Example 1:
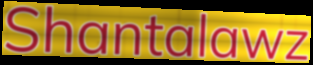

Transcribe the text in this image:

Shantalawz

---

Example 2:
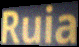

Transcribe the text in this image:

Ruia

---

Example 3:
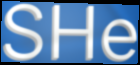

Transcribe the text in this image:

SHe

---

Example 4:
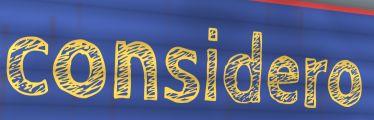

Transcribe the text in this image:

considero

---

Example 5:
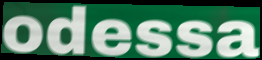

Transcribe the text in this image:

odessa